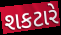
શકટારે